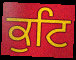
ਕੁਟਿ